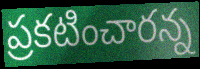
ప్రకటించారన్న